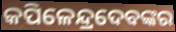
କପିଳେନ୍ଦ୍ରଦେବଙ୍କର